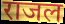
राजल